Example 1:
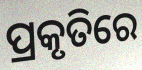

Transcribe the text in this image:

ପ୍ରକୃତିରେ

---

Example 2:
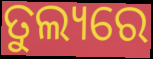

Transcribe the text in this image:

ତୁଲ୍ୟରେ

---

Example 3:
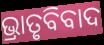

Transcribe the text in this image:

ଭ୍ରାତୃବିବାଦ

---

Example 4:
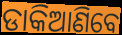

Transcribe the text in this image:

ଡାକିଆଣିବେ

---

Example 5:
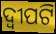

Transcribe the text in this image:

ଦ୍ୱୀପଟି